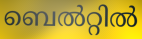
ബെൽറ്റിൽ